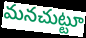
మనచుట్టూ